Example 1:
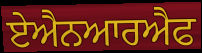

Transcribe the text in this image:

ਏਐਨਆਰਐਫ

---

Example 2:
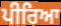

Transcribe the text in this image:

ਪੀਰਿਆ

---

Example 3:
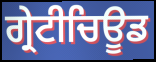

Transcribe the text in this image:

ਗ੍ਰੇਟੀਚਿਊਡ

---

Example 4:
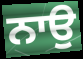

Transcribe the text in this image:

ਨਾਉ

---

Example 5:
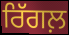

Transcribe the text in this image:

ਰਿੱਗਲ਼